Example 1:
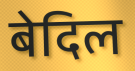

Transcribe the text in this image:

बेदिल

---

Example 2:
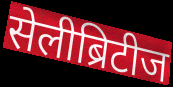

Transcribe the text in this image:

सेलीब्रिटीज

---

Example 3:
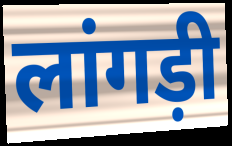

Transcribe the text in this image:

लांगड़ी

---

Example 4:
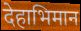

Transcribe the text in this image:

देहाभिमान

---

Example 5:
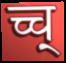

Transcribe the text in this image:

च्च्